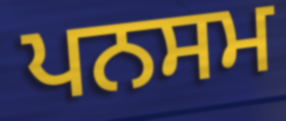
ਪਨਸਮ